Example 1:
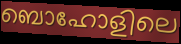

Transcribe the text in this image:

ബൊഹോളിലെ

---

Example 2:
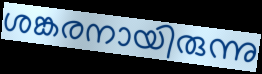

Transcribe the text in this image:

ശങ്കരനായിരുന്നു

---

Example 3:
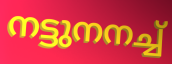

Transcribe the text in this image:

നട്ടുനനച്ച്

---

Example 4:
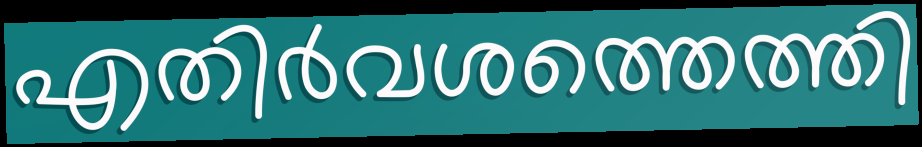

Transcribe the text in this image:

എതിർവശത്തെത്തി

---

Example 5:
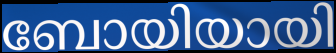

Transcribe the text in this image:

ബോയിയായി